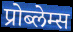
प्रोब्लेम्स